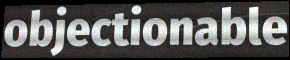
objectionable